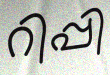
റിപ്പി